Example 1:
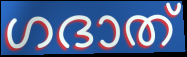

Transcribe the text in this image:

ഗദാത്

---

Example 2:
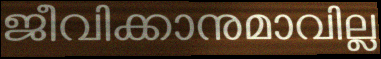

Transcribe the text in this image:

ജീവിക്കാനുമാവില്ല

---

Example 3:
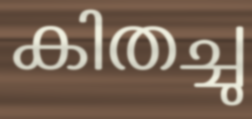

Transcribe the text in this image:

കിതച്ചു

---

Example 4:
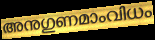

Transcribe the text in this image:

അനുഗുണമാംവിധം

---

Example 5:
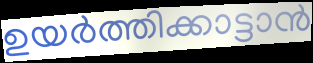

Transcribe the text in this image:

ഉയർത്തിക്കാട്ടാൻ